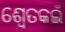
ଶ୍ୱେତକଇଁ